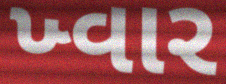
ખ્વાર